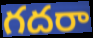
గదరా